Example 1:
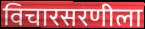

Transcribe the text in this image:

विचारसरणीला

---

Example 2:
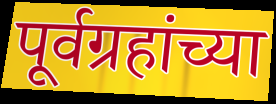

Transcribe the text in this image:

पूर्वग्रहांच्या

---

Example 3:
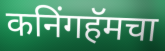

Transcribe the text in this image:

कनिंगहॅमचा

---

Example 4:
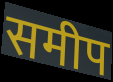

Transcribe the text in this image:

समीप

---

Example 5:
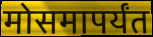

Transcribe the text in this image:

मोसमापर्यंत